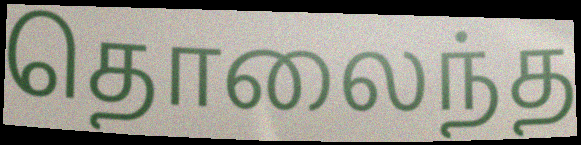
தொலைந்த